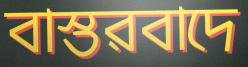
বাস্তৱবাদে